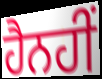
ਹੈਨਹੀਂ